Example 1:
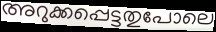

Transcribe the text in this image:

അറുക്കപ്പെട്ടതുപോലെ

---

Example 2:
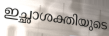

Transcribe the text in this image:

ഇച്ഛാശക്തിയുടെ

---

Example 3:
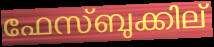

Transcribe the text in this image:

ഫേസ്ബുക്കില്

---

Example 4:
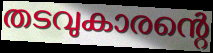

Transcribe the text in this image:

തടവുകാരന്റെ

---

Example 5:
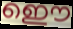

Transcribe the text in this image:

ഇൌ